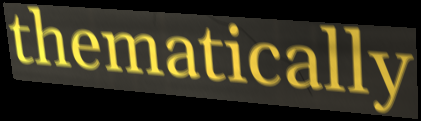
thematically